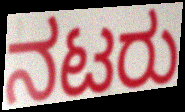
ನಟರು